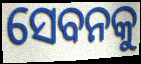
ସେବନକୁ